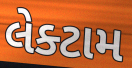
લેક્ટામ